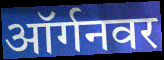
ऑर्गनवर